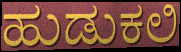
ಹುಡುಕಲಿ